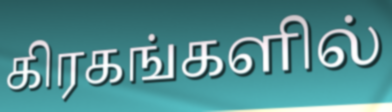
கிரகங்களில்